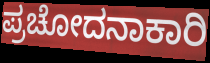
ಪ್ರಚೋದನಾಕಾರಿ